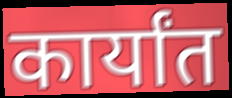
कार्यांत